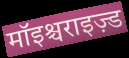
मॉइश्चराइज़्ड